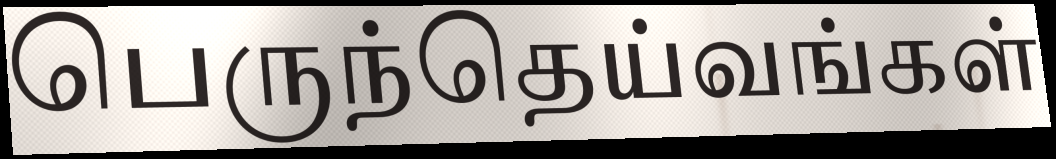
பெருந்தெய்வங்கள்